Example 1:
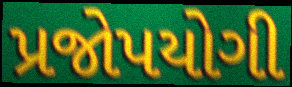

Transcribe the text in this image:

પ્રજોપયોગી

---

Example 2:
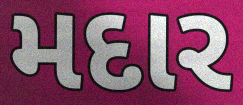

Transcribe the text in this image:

મદાર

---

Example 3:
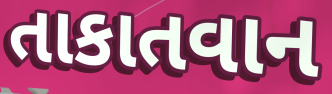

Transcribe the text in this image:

તાકાતવાન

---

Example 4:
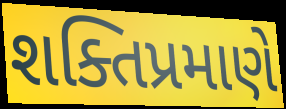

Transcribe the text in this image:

શક્તિપ્રમાણે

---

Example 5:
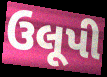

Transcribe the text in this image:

ઉલૂપી